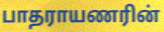
பாதராயணரின்